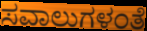
ಸವಾಲುಗಳಂತೆ